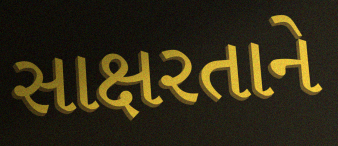
સાક્ષરતાને